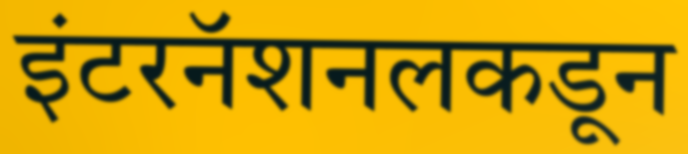
इंटरनॅशनलकडून